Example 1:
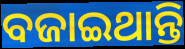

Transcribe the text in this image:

ବଜାଇଥାନ୍ତି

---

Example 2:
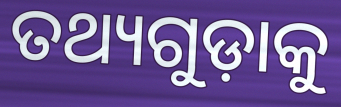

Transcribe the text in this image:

ତଥ୍ୟଗୁଡ଼ାକୁ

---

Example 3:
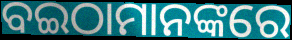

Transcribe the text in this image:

ବଇଠାମାନଙ୍କରେ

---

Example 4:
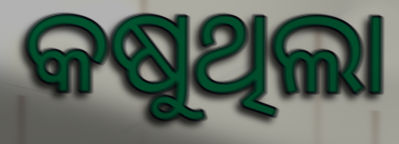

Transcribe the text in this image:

କଷୁଥିଲା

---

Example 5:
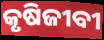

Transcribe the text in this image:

କୃଷିଜୀବୀ